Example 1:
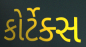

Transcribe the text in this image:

કોર્ટેક્સ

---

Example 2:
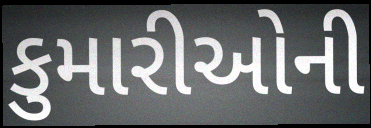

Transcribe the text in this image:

કુમારીઓની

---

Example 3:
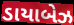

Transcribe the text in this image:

ડાયાબેઝ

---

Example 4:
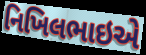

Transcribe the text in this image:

નિખિલભાઇએ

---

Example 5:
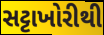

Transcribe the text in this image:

સટ્ટાખોરીથી